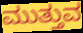
ಮುತ್ತುವ